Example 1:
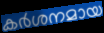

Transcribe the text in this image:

കർശനമായ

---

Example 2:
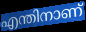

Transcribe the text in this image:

എന്തിനാണ്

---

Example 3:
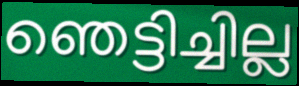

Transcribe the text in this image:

ഞെട്ടിച്ചില്ല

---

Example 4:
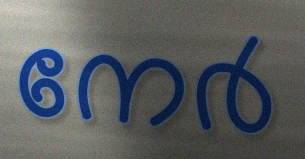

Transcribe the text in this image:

നേർ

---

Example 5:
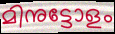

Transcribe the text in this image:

മിനുട്ടോളം